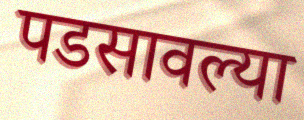
पडसावल्या